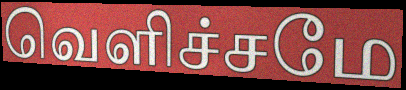
வெளிச்சமே